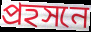
প্রহসনে